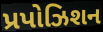
પ્રપોઝિશન